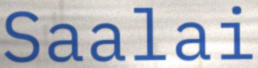
Saalai